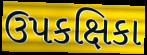
ઉપકક્ષિકા